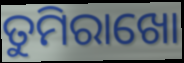
ତୁମିରାଖୋ